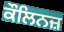
ਕੌਲਿਨਜ਼